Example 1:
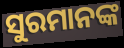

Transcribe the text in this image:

ସୁରମାନଙ୍କ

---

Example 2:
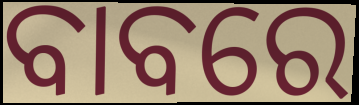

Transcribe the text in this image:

ବାବରେ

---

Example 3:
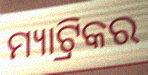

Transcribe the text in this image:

ମ୍ୟାଟ୍ରିକର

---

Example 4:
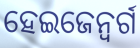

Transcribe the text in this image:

ହେଇଜେନ୍ବର୍ଗ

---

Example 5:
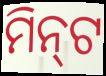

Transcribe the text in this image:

ମିନ୍‌ଟ